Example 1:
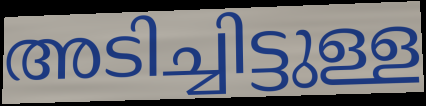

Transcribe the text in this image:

അടിച്ചിട്ടുള്ള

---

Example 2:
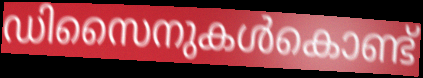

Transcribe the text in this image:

ഡിസൈനുകൾകൊണ്ട്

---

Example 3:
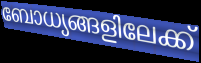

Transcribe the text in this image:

ബോധ്യങ്ങളിലേക്ക്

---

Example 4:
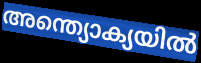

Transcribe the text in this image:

അന്ത്യൊക്യയിൽ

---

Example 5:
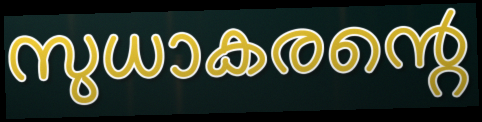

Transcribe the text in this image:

സുധാകരന്റെ